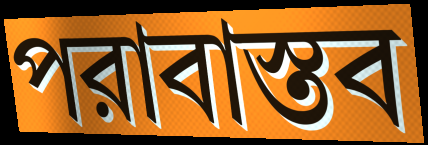
পরাবাস্তব